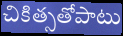
చికిత్సతోపాటు